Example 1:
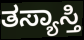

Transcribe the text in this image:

ತಸ್ಯಾಸ್ತಿ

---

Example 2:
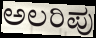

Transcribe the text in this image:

ಅಲರಿಪು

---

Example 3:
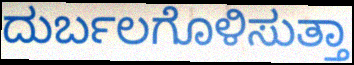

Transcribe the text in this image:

ದುರ್ಬಲಗೊಳಿಸುತ್ತಾ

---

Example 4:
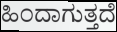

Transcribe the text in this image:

ಹಿಂದಾಗುತ್ತದೆ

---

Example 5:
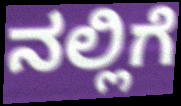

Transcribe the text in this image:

ನಲ್ಲಿಗೆ